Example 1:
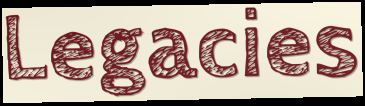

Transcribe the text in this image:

Legacies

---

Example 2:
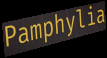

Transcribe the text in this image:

Pamphylia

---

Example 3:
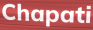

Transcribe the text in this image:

Chapati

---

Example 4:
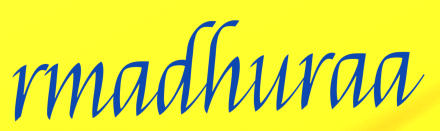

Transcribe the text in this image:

rmadhuraa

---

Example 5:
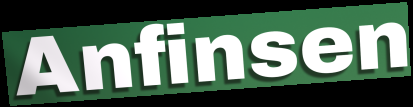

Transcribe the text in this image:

Anfinsen